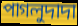
পাগলুদাদা